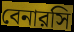
বেনারসি